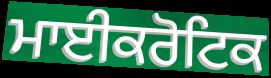
ਮਾਈਕਰੋਟਿਕ